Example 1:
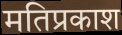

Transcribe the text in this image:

मतिप्रकाश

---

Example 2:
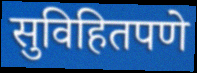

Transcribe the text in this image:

सुविहितपणे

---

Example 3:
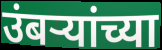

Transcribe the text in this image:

उंबऱ्यांच्या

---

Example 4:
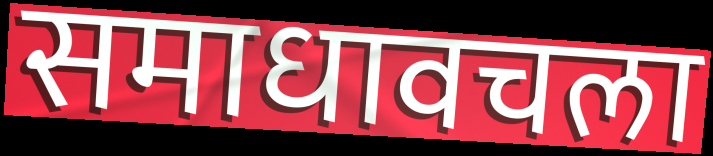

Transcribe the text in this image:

समाधावचला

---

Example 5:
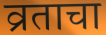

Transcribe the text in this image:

व्रताचा